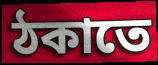
ঠকাতে